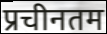
प्रचीनतम